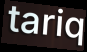
tariq